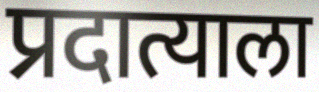
प्रदात्याला